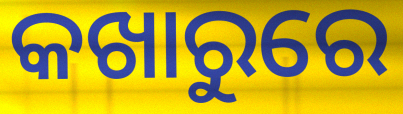
କଖାରୁରେ